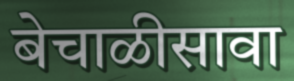
बेचाळीसावा